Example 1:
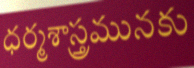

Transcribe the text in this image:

ధర్మశాస్త్రమునకు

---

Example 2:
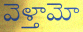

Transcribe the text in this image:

వెళ్తామో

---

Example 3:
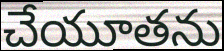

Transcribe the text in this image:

చేయూతను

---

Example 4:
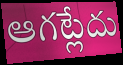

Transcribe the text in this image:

ఆగట్లేదు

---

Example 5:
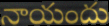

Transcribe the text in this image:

నాయందు